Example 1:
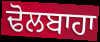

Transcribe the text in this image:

ਢੋਲਬਾਹਾ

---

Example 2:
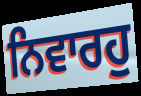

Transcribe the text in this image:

ਨਿਵਾਰਹੁ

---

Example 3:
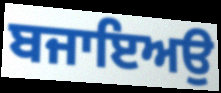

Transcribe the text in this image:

ਬਜਾਇਅਉ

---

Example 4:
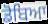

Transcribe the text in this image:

ਡੋਬਿਆ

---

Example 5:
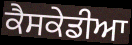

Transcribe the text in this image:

ਕੈਸਕੇਡੀਆ